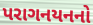
પરાગનયનનો